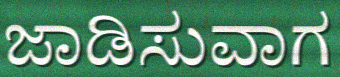
ಜಾಡಿಸುವಾಗ